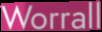
Worrall